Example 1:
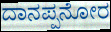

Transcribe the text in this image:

ದಾನಪ್ಪನೋರ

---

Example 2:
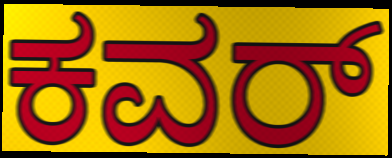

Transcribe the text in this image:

ಕವರ್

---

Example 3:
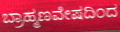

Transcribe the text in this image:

ಬ್ರಾಹ್ಮಣವೇಷದಿಂದ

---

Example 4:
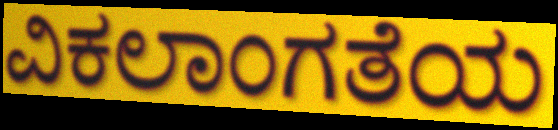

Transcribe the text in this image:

ವಿಕಲಾಂಗತೆಯ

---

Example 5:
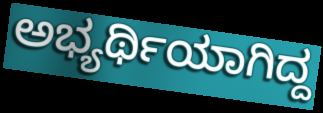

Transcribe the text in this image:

ಅಭ್ಯರ್ಥಿಯಾಗಿದ್ದ